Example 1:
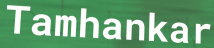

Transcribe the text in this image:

Tamhankar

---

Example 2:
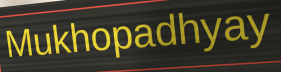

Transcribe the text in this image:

Mukhopadhyay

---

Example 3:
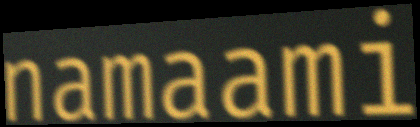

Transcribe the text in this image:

namaami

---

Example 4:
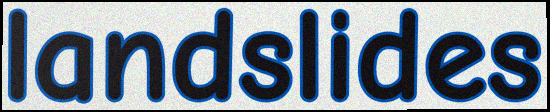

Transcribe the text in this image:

landslides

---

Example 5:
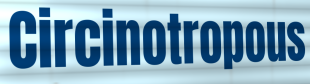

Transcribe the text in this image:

Circinotropous